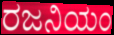
ರಜನಿಯಂ